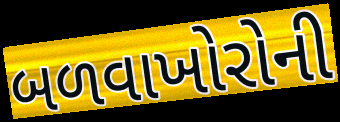
બળવાખોરોની